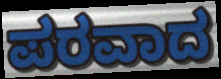
ಪರವಾದ